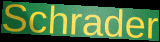
Schrader